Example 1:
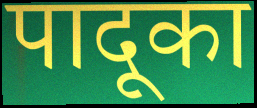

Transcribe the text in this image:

पादूका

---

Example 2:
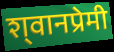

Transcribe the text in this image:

श्वानप्रेमी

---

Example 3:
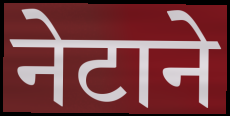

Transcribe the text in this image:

नेटाने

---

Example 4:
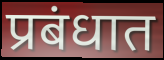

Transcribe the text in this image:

प्रबंधात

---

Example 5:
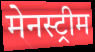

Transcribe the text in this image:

मेनस्ट्रीम